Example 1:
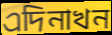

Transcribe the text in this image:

এদিনাখন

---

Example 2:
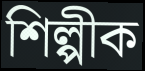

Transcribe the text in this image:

শিল্পীক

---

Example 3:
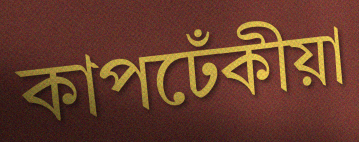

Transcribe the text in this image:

কাপঢেঁকীয়া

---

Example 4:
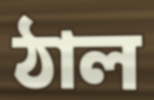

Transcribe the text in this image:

ঠাল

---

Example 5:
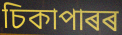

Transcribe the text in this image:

চিকাপাৰৰ